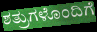
ಶತ್ರುಗಳೊಂದಿಗೆ